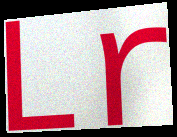
Lr